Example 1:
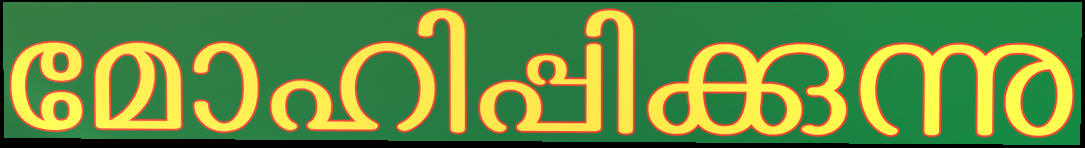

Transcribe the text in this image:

മോഹിപ്പിക്കുന്നു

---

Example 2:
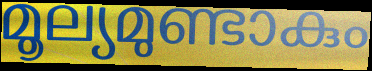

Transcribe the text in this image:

മൂല്യമുണ്ടാകും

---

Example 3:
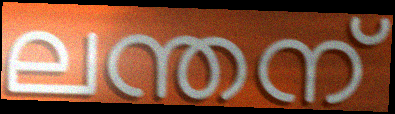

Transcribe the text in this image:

ലന്തന്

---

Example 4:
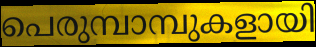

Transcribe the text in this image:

പെരുമ്പാമ്പുകളായി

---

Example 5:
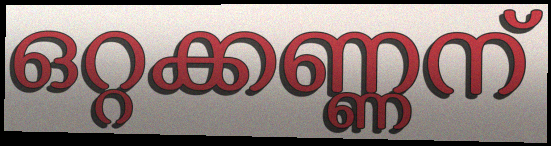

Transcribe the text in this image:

ഒറ്റക്കണ്ണന്